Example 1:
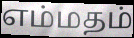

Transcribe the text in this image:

எம்மதம்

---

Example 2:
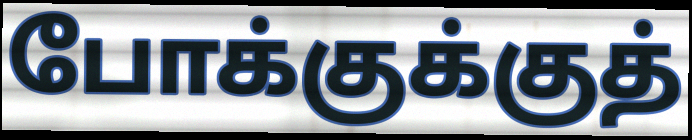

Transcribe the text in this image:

போக்குக்குத்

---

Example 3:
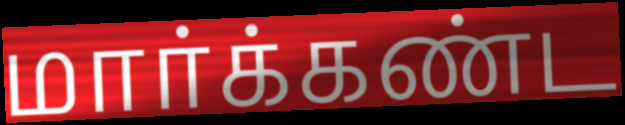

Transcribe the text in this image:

மார்க்கண்ட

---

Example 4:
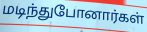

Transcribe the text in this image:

மடிந்துபோனார்கள்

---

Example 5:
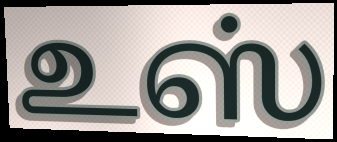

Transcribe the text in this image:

உஸ்